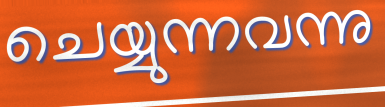
ചെയ്യുന്നവന്നു